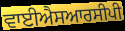
ਵਾਈਐਸਆਰਸੀਪੀ